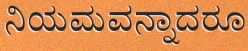
ನಿಯಮವನ್ನಾದರೂ